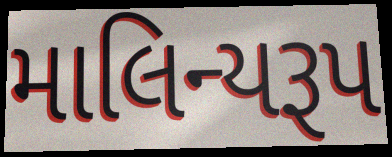
માલિન્યરૂપ